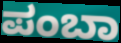
ಪಂಬಾ